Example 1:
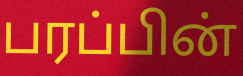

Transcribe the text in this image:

பரப்பின்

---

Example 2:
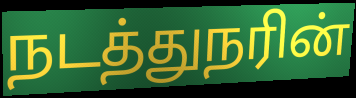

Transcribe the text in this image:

நடத்துநரின்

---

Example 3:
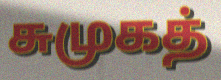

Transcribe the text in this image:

சுமுகத்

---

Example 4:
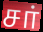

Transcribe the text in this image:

சர்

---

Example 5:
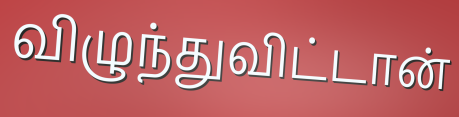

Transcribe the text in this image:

விழுந்துவிட்டான்